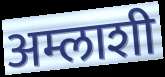
अम्लाशी